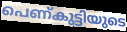
പെണ്കുട്ടിയുടെ